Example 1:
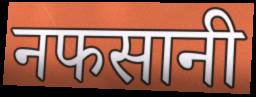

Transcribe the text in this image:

नफसानी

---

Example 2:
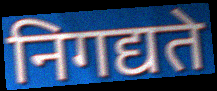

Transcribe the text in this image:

निगद्यते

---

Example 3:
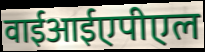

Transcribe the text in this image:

वाईआईएपीएल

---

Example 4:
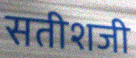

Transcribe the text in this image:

सतीशजी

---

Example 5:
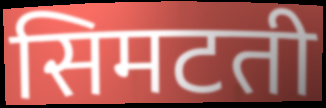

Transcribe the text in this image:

सिमटती